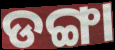
ଡଙ୍ଗା